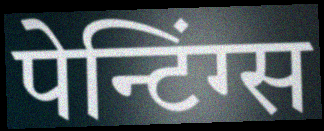
पेन्टिंग्स